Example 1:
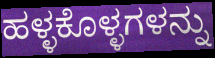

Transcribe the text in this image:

ಹಳ್ಳಕೊಳ್ಳಗಳನ್ನು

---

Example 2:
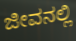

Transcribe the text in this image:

ಜೀವನಲ್ಲಿ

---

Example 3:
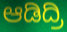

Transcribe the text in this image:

ಆಡಿದ್ರಿ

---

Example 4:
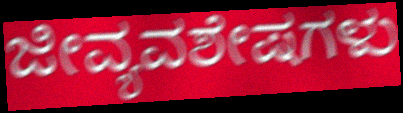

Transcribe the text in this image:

ಜೀವ್ಯವಶೇಷಗಳು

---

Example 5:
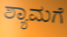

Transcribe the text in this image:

ಶ್ಯಾಮಗೆ